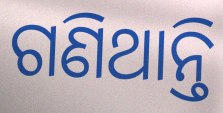
ଗଣିଥାନ୍ତି